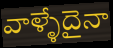
వాళ్ళేదైనా